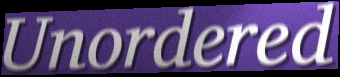
Unordered